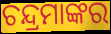
ଚନ୍ଦ୍ରମାଙ୍କର